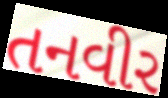
તનવીર